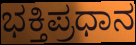
ಭಕ್ತಿಪ್ರಧಾನ